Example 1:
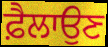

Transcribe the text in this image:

ਫ਼ੈਲਾਉਣ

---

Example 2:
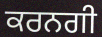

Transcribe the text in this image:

ਕਰਨਗੀ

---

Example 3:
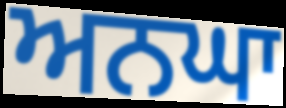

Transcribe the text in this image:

ਅਨਘਾ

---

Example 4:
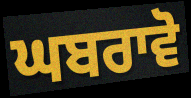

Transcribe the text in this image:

ਘਬਰਾਵੋ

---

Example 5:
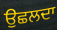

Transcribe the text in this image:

ਉਛਲਦਾ